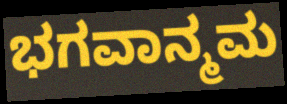
ಭಗವಾನ್ಮಮ